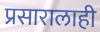
प्रसारालाही